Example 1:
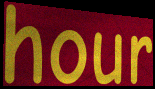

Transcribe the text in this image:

hour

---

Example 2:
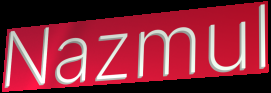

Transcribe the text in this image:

Nazmul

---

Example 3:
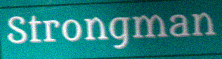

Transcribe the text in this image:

Strongman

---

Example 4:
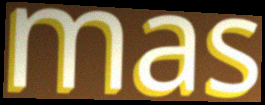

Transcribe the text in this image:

mas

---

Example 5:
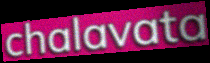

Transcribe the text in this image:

chalavata